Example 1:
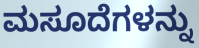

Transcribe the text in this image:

ಮಸೂದೆಗಳನ್ನು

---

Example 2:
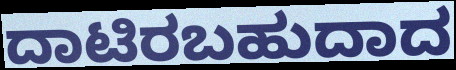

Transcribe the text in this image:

ದಾಟಿರಬಹುದಾದ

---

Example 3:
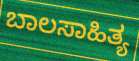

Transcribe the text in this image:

ಬಾಲಸಾಹಿತ್ಯ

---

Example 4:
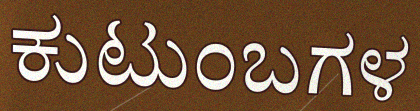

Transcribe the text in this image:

ಕುಟುಂಬಗಳ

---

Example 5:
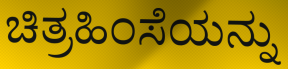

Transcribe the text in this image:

ಚಿತ್ರಹಿಂಸೆಯನ್ನು